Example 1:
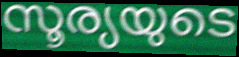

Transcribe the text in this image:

സൂര്യയുടെ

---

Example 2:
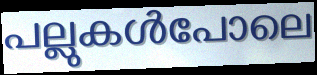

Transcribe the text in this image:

പല്ലുകൾപോലെ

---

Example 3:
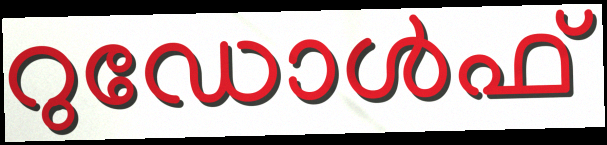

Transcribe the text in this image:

റുഡോൾഫ്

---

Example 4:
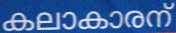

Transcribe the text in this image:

കലാകാരന്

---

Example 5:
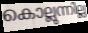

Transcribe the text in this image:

കൊല്ലുന്നില്ല